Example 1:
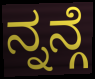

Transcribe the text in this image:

ನ್ನನ್ಗೆ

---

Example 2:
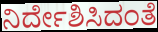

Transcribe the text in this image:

ನಿರ್ದೇಶಿಸಿದಂತೆ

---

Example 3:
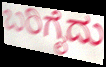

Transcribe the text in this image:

ಬರಿಗೈದು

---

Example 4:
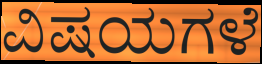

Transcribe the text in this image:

ವಿಷಯಗಳೆ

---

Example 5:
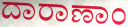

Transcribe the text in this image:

ದಾರಾಣಾಂ